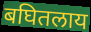
बघितलाय